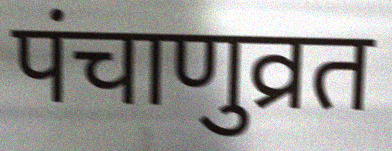
पंचाणुव्रत